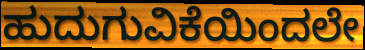
ಹುದುಗುವಿಕೆಯಿಂದಲೇ